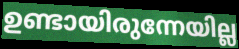
ഉണ്ടായിരുന്നേയില്ല